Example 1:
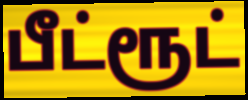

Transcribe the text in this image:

பீட்ரூட்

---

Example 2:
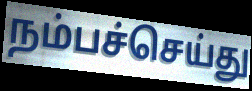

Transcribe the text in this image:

நம்பச்செய்து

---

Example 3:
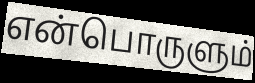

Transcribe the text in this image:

என்பொருளும்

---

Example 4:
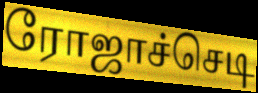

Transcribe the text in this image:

ரோஜாச்செடி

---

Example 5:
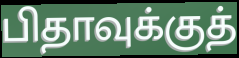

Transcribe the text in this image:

பிதாவுக்குத்